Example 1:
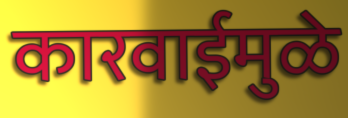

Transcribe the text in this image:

कारवाईमुळे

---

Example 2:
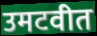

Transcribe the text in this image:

उमटवीत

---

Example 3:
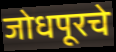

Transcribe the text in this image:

जोधपूरचे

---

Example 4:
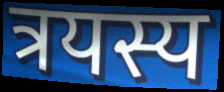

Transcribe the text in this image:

त्रयस्य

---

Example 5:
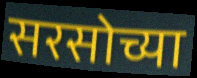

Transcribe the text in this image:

सरसोच्या